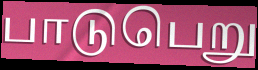
பாடுபெறு